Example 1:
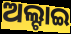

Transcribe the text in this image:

ଅଲ୍ଟାଇ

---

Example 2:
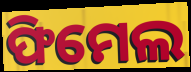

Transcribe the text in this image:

ଫିମେଲ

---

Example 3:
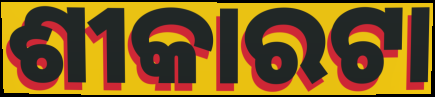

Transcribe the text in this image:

ଶୀକାରଟା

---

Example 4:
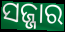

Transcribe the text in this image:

ସଜ୍ଜାର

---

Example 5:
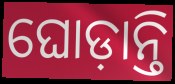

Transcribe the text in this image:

ଘୋଡ଼ାନ୍ତି